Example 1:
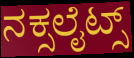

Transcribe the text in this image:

ನಕ್ಸಲೈಟ್ಸ್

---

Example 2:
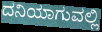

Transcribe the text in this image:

ದನಿಯಾಗುವಲ್ಲಿ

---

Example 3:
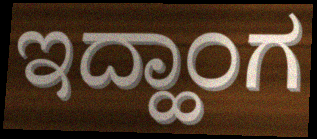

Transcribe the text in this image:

ಇದ್ಹಾಂಗ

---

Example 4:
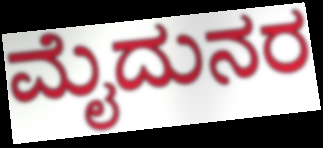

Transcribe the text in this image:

ಮೈದುನರ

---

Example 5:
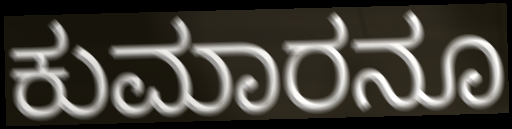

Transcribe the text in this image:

ಕುಮಾರನೂ